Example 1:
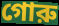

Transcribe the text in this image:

গোরু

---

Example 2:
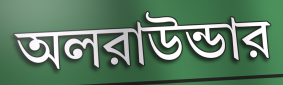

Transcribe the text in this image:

অলরাউন্ডার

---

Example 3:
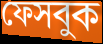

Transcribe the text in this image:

ফেসবুক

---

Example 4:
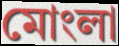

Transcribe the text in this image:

মোংলা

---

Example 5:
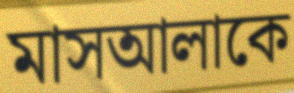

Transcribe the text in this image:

মাসআলাকে